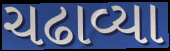
ચઢાવ્યા